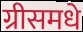
ग्रीसमधे